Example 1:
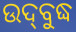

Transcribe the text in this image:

ଉଦ୍‌ବୁଦ୍ଧ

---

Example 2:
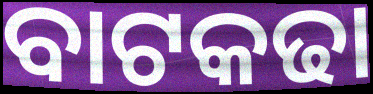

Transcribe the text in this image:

ବାଟକଢା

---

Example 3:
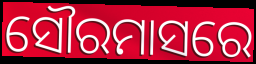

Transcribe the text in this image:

ସୌରମାସରେ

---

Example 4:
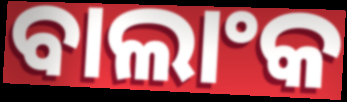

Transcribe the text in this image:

ବାଲାଂକ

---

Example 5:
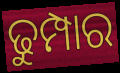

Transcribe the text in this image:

ଢୁମ୍ପାର